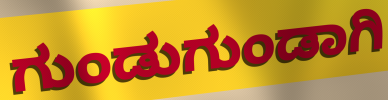
ಗುಂಡುಗುಂಡಾಗಿ